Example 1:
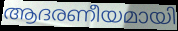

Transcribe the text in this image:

ആദരണീയമായി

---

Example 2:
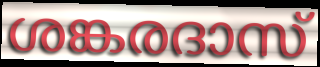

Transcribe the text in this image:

ശങ്കരദാസ്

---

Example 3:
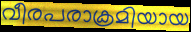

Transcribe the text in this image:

വീരപരാക്രമിയായ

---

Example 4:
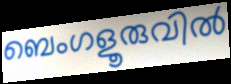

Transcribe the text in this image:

ബെംഗളൂരുവിൽ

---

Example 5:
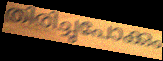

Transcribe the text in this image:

തിരിച്ചുപോക്കും